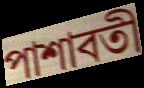
পাশাবতী